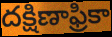
దక్షిణాఫ్రికా